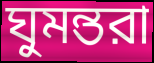
ঘুমন্তরা